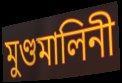
মুণ্ডমালিনী